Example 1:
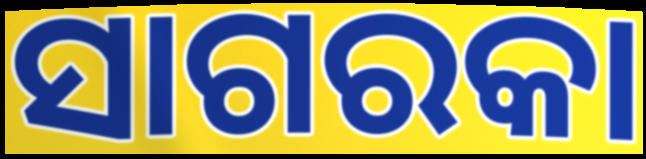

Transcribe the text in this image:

ସାଗରକା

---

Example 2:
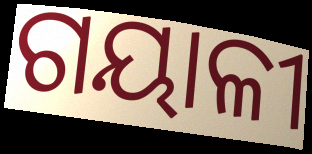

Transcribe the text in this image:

ଗୟାଳୀ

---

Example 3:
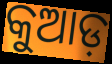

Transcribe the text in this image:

କୁଆଡ଼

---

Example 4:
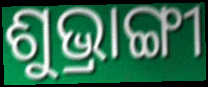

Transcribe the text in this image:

ଶୁଭ୍ରାଙ୍ଗୀ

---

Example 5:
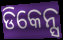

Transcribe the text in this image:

ଡିକେନ୍ସ